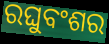
ରଘୁବଂଶର